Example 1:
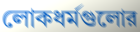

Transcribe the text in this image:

লোকধর্মগুলোর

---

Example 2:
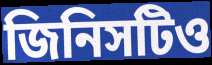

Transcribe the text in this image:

জিনিসটিও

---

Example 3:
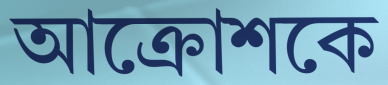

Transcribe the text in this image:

আক্রোশকে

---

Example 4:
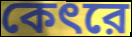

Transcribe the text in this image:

কেৎরে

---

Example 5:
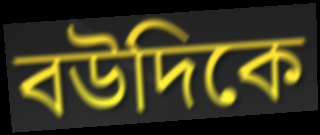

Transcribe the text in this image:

বউদিকে